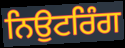
ਨਿਉਟਰਿੰਗ